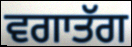
ਵਗਾਤੱਗ